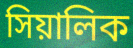
সিয়ালিক